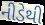
નીડેથી